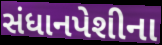
સંધાનપેશીના